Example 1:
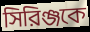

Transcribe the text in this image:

সিরিঞ্জকে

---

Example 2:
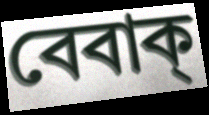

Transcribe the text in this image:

বেবাক্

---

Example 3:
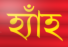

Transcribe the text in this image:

হ্যাঁহ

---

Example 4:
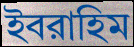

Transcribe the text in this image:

ইবরাহিম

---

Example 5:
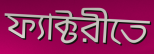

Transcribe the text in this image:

ফ্যাক্টরীতে